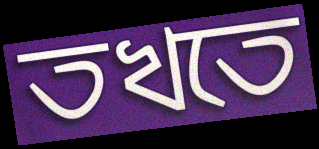
তখতে